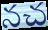
నచ